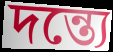
দন্ত্যে